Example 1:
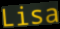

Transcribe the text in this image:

Lisa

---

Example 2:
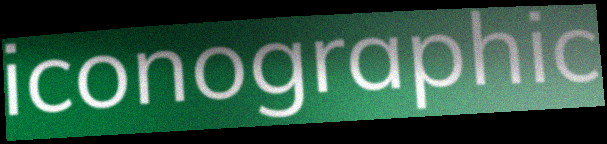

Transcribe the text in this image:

iconographic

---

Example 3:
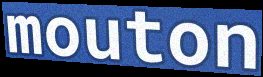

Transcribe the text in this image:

mouton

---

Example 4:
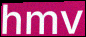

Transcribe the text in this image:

hmv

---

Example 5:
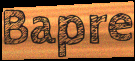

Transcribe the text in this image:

Bapre